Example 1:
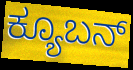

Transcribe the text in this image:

ಕ್ಯೂಬನ್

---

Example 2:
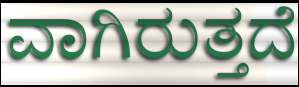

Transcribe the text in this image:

ವಾಗಿರುತ್ತದೆ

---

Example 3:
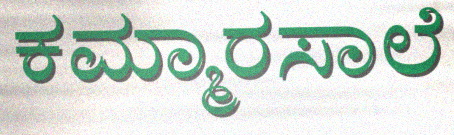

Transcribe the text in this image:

ಕಮ್ಮಾರಸಾಲೆ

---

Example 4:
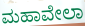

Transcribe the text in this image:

ಮಹಾವೇಲಾ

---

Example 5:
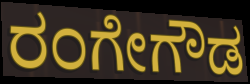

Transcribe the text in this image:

ರಂಗೇಗೌಡ